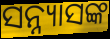
ସନ୍ନ୍ୟାସଙ୍କ